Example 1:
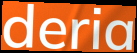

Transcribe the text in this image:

deria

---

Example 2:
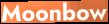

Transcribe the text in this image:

Moonbow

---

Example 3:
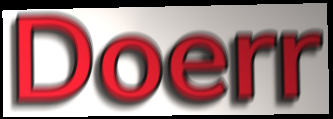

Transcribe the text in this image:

Doerr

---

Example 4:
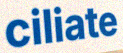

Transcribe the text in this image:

ciliate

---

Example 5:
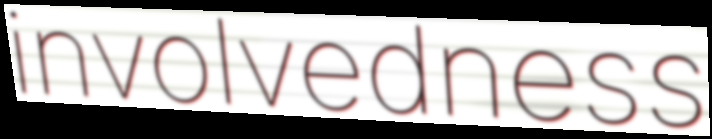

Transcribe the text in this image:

involvedness